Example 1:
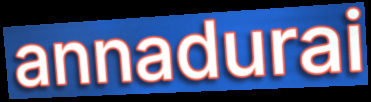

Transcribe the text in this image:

annadurai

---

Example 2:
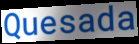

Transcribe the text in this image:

Quesada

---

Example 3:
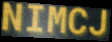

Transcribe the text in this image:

NIMCJ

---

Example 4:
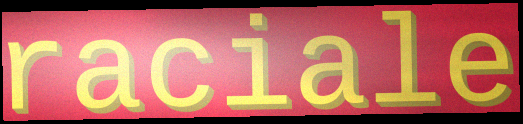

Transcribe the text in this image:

raciale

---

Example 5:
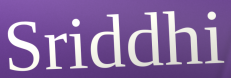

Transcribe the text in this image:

Sriddhi